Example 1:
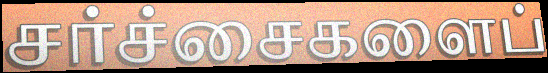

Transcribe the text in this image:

சர்ச்சைகளைப்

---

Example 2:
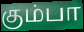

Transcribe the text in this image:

கும்பா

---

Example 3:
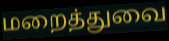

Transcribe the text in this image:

மறைத்துவை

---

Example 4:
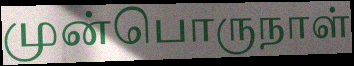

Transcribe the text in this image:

முன்பொருநாள்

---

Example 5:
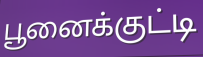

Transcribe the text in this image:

பூனைக்குட்டி